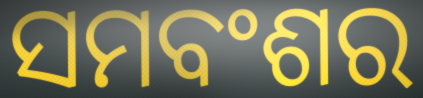
ସମବଂଶର